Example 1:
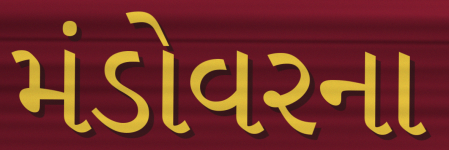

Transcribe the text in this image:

મંડોવરના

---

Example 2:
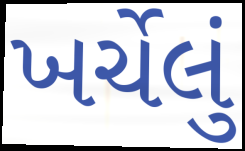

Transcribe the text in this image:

ખર્ચેલું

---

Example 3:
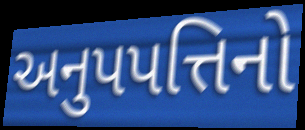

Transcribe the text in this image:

અનુપપત્તિનો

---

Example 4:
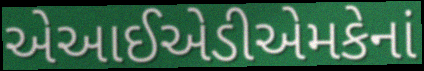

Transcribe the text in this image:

એઆઈએડીએમકેનાં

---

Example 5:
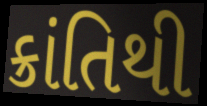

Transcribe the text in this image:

ક્રાંતિથી